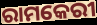
ରାମକେରୀ